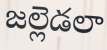
జల్లెడలా